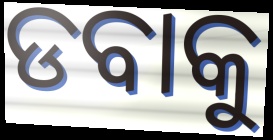
ଡବାକୁ